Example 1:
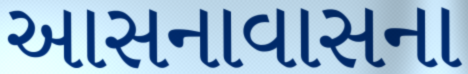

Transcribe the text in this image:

આસનાવાસના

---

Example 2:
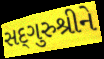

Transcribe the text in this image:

સદ્‌ગુરુશ્રીને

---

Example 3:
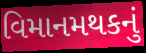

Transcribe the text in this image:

વિમાનમથકનું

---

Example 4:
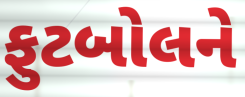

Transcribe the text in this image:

ફુટબોલને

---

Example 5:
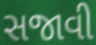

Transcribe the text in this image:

સજાવી